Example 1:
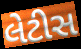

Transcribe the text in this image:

લેટીસ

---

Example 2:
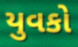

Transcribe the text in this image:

યુવકો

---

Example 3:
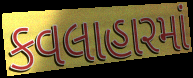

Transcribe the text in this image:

કવલાહારમાં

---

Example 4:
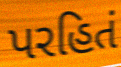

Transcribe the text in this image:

પરહિતં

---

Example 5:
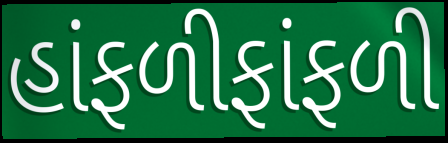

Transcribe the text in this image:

હાંફળીફાંફળી